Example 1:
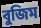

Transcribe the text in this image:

বুজিম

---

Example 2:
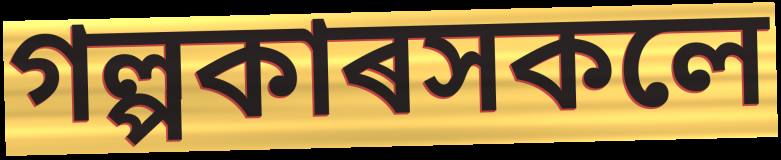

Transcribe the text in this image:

গল্পকাৰসকলে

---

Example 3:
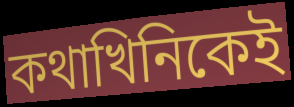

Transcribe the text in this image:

কথাখিনিকেই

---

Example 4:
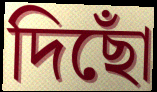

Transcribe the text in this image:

দিছোঁ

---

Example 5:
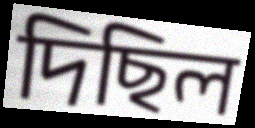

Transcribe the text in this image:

দিছিল